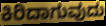
ಕಿರಿದಾಗುವುದು